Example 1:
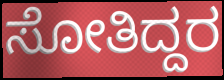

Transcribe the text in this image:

ಸೋತಿದ್ದರ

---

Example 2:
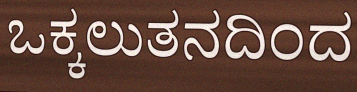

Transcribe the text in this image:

ಒಕ್ಕಲುತನದಿಂದ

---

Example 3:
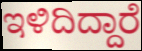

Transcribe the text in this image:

ಇಳಿದಿದ್ದಾರೆ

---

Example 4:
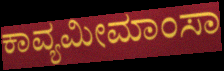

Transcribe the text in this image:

ಕಾವ್ಯಮೀಮಾಂಸಾ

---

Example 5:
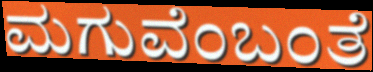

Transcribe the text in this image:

ಮಗುವೆಂಬಂತೆ